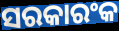
ସରକାରଂକ